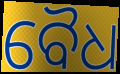
ବୈଧ